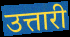
उत्तारी